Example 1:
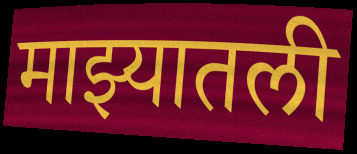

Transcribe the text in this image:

माझ्यातली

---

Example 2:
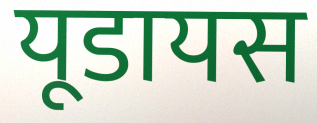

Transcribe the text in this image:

यूडायस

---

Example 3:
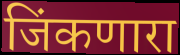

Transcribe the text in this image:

जिंकणारा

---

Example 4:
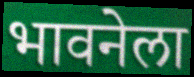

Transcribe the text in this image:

भावनेला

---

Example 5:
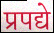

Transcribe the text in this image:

प्रपद्ये